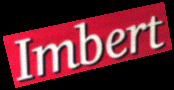
Imbert